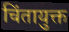
चिंतायुक्त